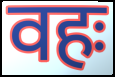
वहः